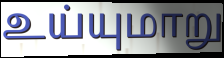
உய்யுமாறு